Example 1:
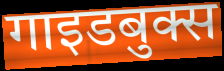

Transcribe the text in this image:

गाइडबुक्स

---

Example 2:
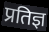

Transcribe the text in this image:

प्रतिज्ञ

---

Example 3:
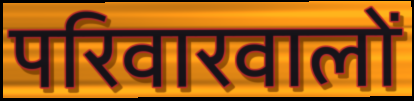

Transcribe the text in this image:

परिवारवालों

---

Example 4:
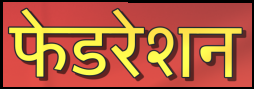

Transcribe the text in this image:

फेडरेशन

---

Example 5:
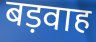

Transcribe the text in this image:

बड़वाह